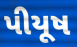
પીયૂષ